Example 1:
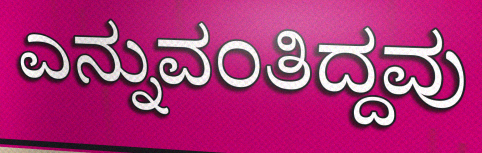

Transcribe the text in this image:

ಎನ್ನುವಂತಿದ್ದವು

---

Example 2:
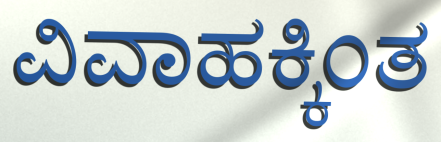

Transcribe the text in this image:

ವಿವಾಹಕ್ಕಿಂತ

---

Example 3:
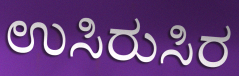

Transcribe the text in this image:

ಉಸಿರುಸಿರ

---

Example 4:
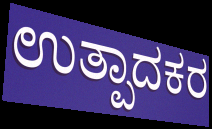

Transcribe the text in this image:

ಉತ್ಪಾದಕರ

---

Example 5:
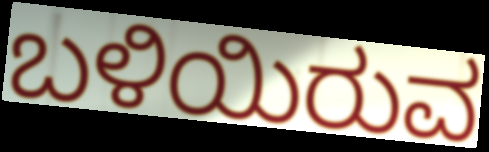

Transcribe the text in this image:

ಬಳಿಯಿರುವ